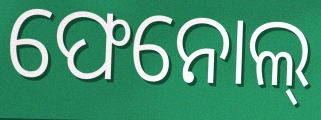
ଫେନୋଲ୍